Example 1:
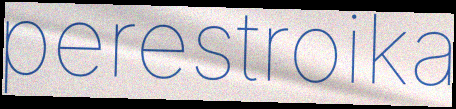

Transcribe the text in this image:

perestroika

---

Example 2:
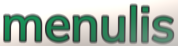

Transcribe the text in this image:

menulis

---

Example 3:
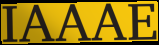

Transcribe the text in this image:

IAAAE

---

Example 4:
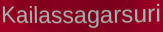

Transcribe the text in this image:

Kailassagarsuri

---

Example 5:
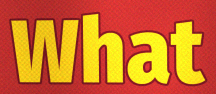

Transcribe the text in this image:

What